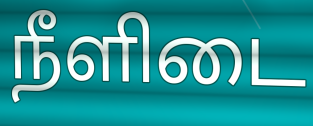
நீளிடை